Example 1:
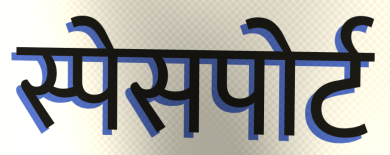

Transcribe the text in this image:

स्पेसपोर्ट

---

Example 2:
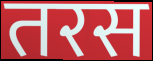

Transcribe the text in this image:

तरस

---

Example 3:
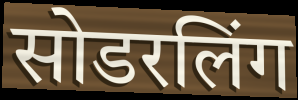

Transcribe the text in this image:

सोडरलिंग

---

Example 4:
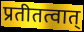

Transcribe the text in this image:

प्रतीतत्वात्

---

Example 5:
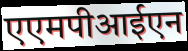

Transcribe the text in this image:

एएमपीआईएन